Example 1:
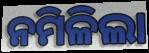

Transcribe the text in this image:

ନମିଳିଲା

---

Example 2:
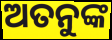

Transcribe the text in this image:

ଅତନୁଙ୍କ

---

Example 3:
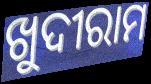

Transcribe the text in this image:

ଖୁଦୀରାମ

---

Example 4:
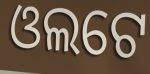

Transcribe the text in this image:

ଓଲଟେ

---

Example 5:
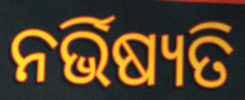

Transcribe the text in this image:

ନର୍ଭିଷ୍ୟତି